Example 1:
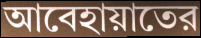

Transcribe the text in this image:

আবেহায়াতের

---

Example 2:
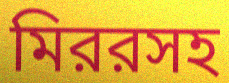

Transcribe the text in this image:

মিররসহ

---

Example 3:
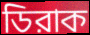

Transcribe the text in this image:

ডিরাক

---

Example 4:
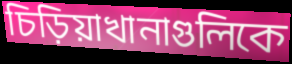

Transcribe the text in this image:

চিড়িয়াখানাগুলিকে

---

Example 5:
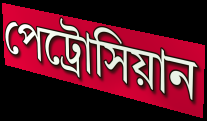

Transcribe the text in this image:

পেট্রোসিয়ান